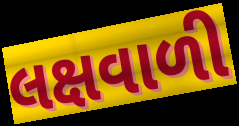
લક્ષવાળી